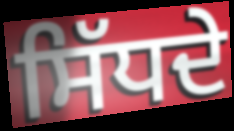
ਸਿੱਧਦੇ